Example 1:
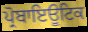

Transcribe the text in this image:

ਪ੍ਰੋਬਾਇਊਟਿਕ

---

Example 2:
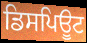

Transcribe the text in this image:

ਡਿਸਪਿਊਟ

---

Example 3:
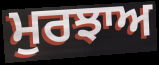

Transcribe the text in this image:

ਮੁਰਝਾਅ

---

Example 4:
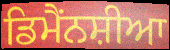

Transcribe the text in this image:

ਡਿਮੈਂਨਸ਼ੀਆ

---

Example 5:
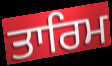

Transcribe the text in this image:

ਤਾਰਿਮ